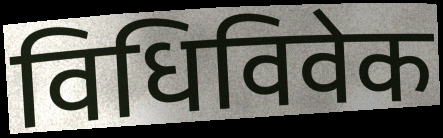
विधिविवेक